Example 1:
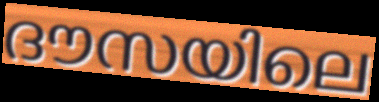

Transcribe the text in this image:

ദൗസയിലെ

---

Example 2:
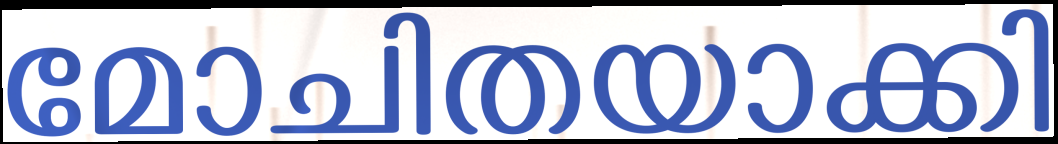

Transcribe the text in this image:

മോചിതയാക്കി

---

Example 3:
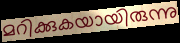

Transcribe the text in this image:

മറിക്കുകയായിരുന്നു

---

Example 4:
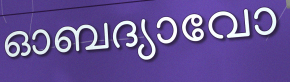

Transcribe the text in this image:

ഓബദ്യാവോ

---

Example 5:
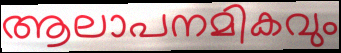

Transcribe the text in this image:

ആലാപനമികവും